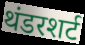
थंडरशर्ट